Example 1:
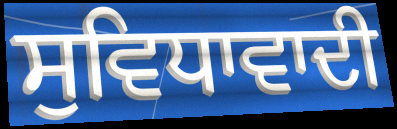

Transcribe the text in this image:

ਸੁਵਿਧਾਵਾਦੀ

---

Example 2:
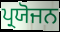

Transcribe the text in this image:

ਪ੍ਰਯੋਜਨ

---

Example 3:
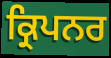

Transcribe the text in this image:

ਕ੍ਰਿਪਨਰ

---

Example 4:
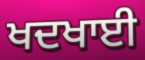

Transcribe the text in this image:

ਖਦਖਾਈ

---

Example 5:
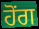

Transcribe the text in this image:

ਹੋਂਗ